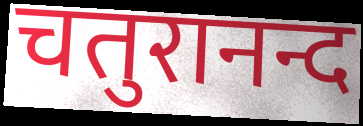
चतुरानन्द